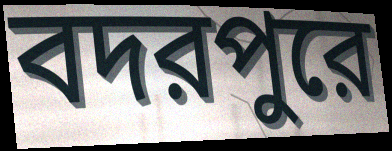
বদরপুরে